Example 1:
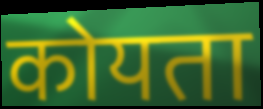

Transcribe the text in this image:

कोयता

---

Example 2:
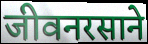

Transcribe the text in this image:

जीवनरसाने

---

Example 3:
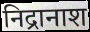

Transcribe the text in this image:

निद्रानाश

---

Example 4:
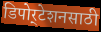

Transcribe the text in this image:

डिपोर्टेशनसाठी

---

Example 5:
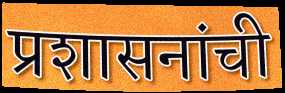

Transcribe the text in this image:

प्रशासनांची